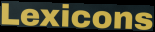
Lexicons